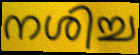
നശിച്ച